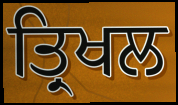
ਤ੍ਰਿਖਲ